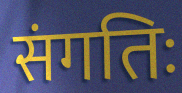
संगतिः